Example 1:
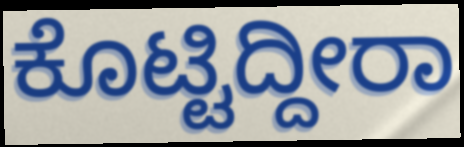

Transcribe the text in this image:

ಕೊಟ್ಟಿದ್ದೀರಾ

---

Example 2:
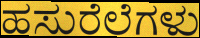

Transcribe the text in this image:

ಹಸುರೆಲೆಗಳು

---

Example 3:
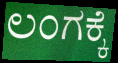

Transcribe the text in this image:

ಲಂಗಕ್ಕೆ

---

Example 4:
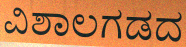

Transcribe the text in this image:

ವಿಶಾಲಗಡದ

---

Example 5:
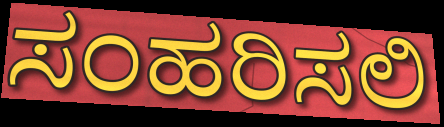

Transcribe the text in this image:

ಸಂಹರಿಸಲಿ